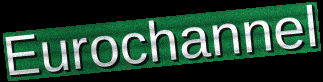
Eurochannel